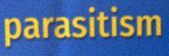
parasitism